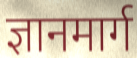
ज्ञानमार्ग